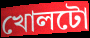
খোলটো